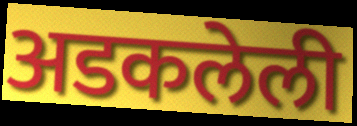
अडकलेली